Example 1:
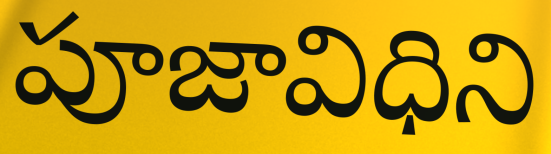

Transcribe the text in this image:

పూజావిధిని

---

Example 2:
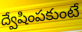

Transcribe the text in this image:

ద్వేషింపకుంటే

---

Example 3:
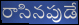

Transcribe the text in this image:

రాసినపుడే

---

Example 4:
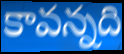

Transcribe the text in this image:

కావన్నది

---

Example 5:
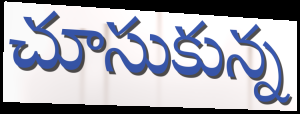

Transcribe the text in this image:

చూసుకున్న